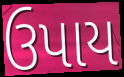
ઉપાય